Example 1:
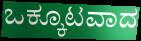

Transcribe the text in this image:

ಒಕ್ಕೂಟವಾದ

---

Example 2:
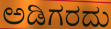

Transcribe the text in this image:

ಅಡಿಗರದು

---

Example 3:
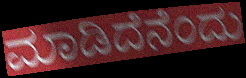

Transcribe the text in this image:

ಮಾಡಿದೆನೆಂದು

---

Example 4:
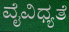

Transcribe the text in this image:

ವೈವಿಧ್ಯತೆ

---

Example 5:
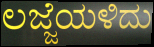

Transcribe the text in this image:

ಲಜ್ಜೆಯಳಿದು